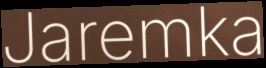
Jaremka